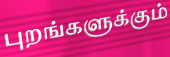
புறங்களுக்கும்